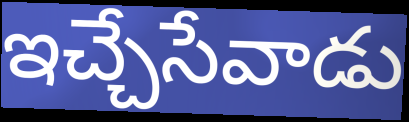
ఇచ్చేసేవాడు